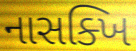
નાસક્ખિ